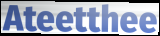
Ateetthee